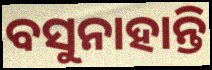
ବସୁନାହାନ୍ତି